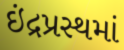
ઇંદ્રપ્રસ્થમાં